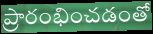
ప్రారంభించడంతో